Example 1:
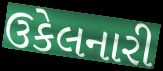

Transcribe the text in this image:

ઉકેલનારી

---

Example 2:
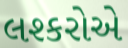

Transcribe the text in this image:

લશ્કરોએ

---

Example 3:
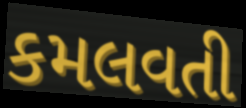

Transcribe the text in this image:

કમલવતી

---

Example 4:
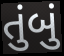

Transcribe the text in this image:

તુંબું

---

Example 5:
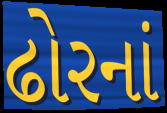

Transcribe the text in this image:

ઢોરનાં